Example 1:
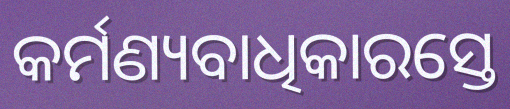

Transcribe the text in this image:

କର୍ମଣ୍ୟବାଧିକାରସ୍ତେ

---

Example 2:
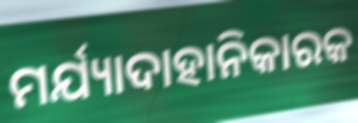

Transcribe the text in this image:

ମର୍ଯ୍ୟାଦାହାନିକାରକ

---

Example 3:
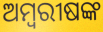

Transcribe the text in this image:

ଅମ୍ବରୀଷଙ୍କ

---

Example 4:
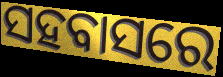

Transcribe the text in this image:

ସହବାସରେ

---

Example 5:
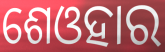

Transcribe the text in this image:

ଶେଓହାର